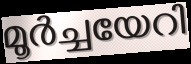
മൂർച്ചയേറി